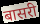
बासरी